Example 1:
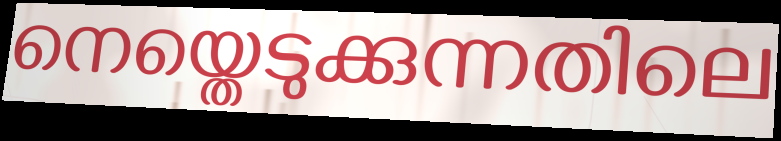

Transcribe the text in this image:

നെയ്തെടുക്കുന്നതിലെ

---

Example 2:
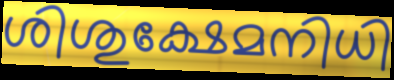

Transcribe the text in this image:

ശിശുക്ഷേമനിധി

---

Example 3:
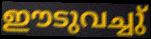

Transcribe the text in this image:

ഈടുവച്ചു്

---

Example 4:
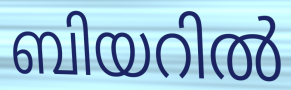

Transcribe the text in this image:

ബിയറിൽ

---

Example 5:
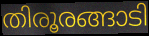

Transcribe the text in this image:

തിരൂരങ്ങാടി